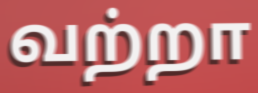
வற்றா